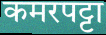
कमरपट्टा